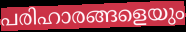
പരിഹാരങ്ങളെയും